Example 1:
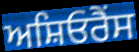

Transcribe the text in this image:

ਅਸ਼ਿਓਰੈਂਸ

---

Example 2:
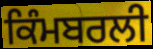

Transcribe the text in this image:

ਕਿੰਮਬਰਲੀ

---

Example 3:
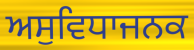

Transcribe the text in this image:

ਅਸੁਵਿਧਾਜਨਕ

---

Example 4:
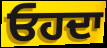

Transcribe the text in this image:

ਓਹਦਾ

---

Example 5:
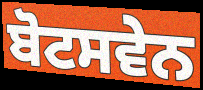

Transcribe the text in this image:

ਬੋਟਸਵੇਨ